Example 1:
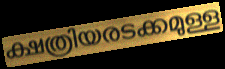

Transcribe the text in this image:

ക്ഷത്രിയരടക്കമുള്ള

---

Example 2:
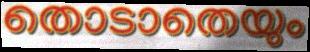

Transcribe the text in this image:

തൊടാതെയും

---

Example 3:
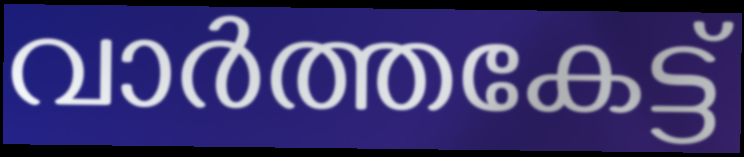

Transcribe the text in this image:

വാർത്തകേട്ട്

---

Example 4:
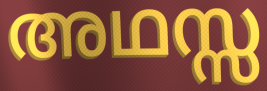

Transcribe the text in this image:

അഥസ്സ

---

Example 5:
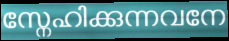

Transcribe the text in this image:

സ്നേഹിക്കുന്നവനേ